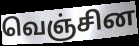
வெஞ்சின